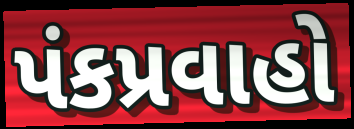
પંકપ્રવાહો